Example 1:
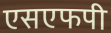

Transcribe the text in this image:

एसएफपी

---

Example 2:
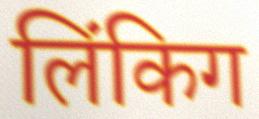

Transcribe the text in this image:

लिंकिग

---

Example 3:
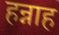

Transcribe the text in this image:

हन्नाह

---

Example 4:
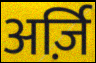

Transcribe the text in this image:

अर्ज़ि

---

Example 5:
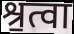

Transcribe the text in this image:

श्र॒त्वा